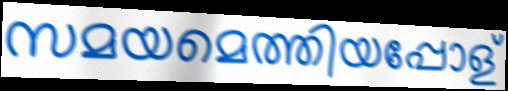
സമയമെത്തിയപ്പോള്